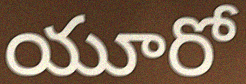
యూరో